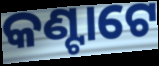
କଣ୍ଟାଟେ